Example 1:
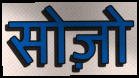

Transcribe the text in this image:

सोज़ो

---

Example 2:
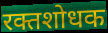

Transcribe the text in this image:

रक्तशोधक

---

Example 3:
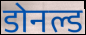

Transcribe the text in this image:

डोनल्‍ड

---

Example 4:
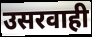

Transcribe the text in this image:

उसरवाही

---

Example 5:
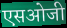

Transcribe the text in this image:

एसओजी